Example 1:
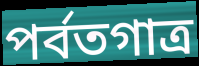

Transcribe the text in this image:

পর্বতগাত্র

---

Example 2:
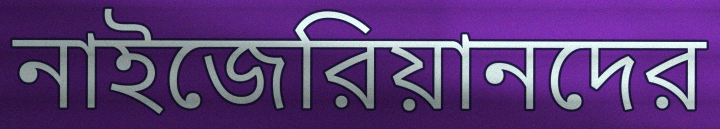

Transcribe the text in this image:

নাইজেরিয়ানদের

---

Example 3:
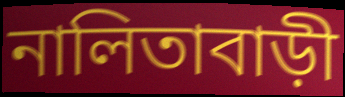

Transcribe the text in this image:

নালিতাবাড়ী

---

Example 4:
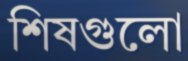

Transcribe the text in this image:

শিষগুলো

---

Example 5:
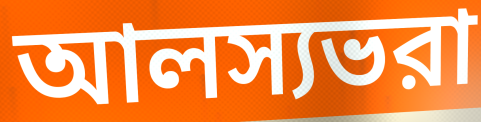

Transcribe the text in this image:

আলস্যভরা